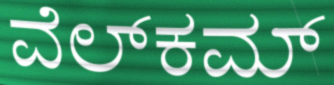
ವೆಲ್‍ಕಮ್